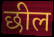
छील